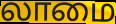
லாமை